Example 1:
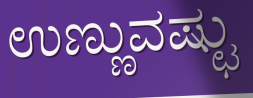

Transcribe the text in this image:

ಉಣ್ಣುವಷ್ಟು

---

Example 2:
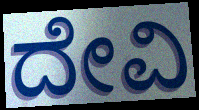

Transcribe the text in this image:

ದೇವಿ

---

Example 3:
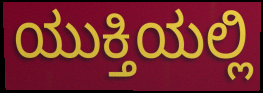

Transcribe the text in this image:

ಯುಕ್ತಿಯಲ್ಲಿ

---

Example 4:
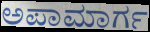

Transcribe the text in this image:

ಅಪಾಮಾರ್ಗ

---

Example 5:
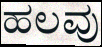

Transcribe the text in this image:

ಹಲವು